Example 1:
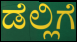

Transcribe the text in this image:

ಡೆಲ್ಲಿಗೆ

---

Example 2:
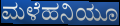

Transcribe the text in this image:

ಮಳೆಹನಿಯೂ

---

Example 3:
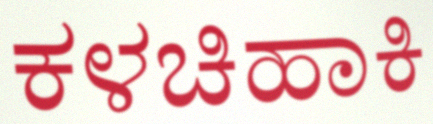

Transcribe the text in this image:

ಕಳಚಿಹಾಕಿ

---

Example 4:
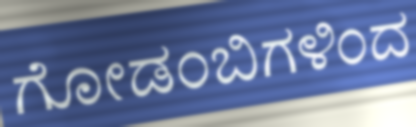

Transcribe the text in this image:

ಗೋಡಂಬಿಗಳಿಂದ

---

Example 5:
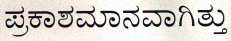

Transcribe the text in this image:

ಪ್ರಕಾಶಮಾನವಾಗಿತ್ತು